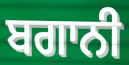
ਬਗਾਨੀ